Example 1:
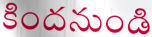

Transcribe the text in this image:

కిందనుండి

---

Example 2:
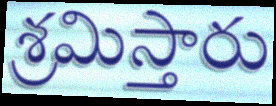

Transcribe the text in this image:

శ్రమిస్తారు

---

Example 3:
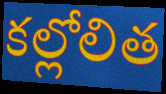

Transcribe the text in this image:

కల్లోలిత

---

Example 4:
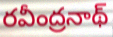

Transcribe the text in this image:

రవీంద్రనాథ్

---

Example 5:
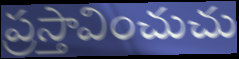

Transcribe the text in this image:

ప్రస్తావించుచు